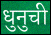
धुनुची